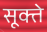
सूक्ते